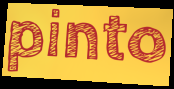
pinto